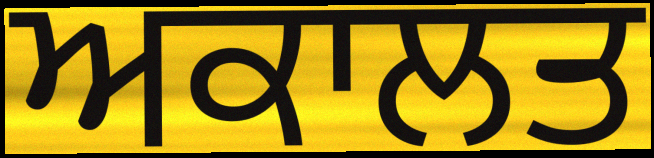
ਅਕਾਲਤ